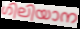
ഗിലിയാന